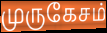
முருகேசம்